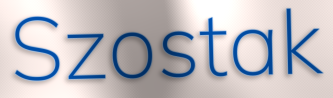
Szostak